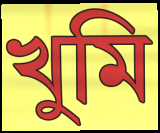
খুমি